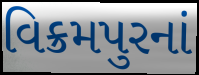
વિક્રમપુરનાં